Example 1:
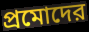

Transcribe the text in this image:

প্রমোদের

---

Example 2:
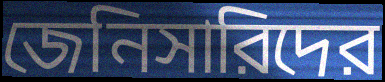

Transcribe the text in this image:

জেনিসারিদের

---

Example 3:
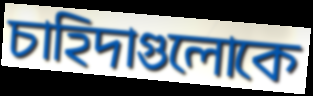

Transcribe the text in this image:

চাহিদাগুলোকে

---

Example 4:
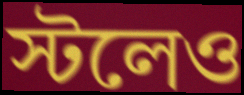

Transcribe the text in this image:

স্টলেও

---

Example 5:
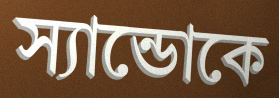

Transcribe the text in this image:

স্যান্ডোকে